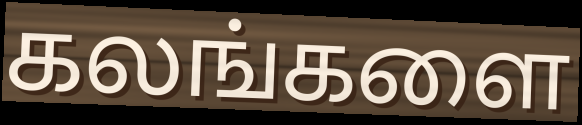
கலங்களை